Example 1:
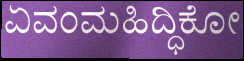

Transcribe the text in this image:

ಏವಂಮಹಿದ್ಧಿಕೋ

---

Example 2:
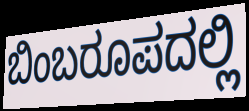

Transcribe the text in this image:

ಬಿಂಬರೂಪದಲ್ಲಿ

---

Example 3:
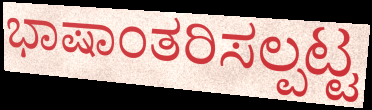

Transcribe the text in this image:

ಭಾಷಾಂತರಿಸಲ್ಪಟ್ಟ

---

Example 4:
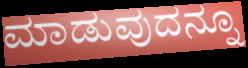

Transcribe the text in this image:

ಮಾಡುವುದನ್ನೂ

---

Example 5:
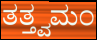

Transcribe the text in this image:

ತತ್ತ್ವಮಂ